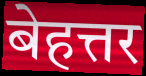
बेहत्तर